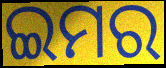
ଇମର